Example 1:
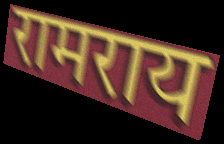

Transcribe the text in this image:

रामराय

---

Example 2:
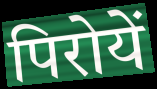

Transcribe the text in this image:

पिरोयें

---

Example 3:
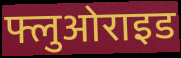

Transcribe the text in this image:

फ्लुओराइड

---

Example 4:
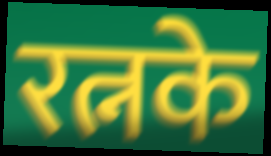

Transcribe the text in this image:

रत्नके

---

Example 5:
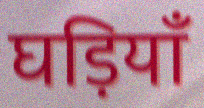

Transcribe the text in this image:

घड़ियाँ